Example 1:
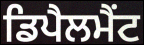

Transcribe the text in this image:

ਡਿਪੈਲਮੈਂਟ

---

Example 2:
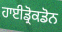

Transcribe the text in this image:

ਹਾਈਡ੍ਰੋਕਡੋਨ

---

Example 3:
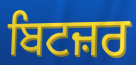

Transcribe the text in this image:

ਬਿਟਜ਼ਰ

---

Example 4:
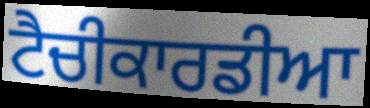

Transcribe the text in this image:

ਟੈਚੀਕਾਰਡੀਆ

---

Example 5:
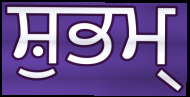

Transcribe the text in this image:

ਸ਼ੁਭਮ੍